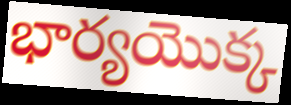
భార్యయొక్క